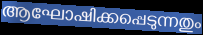
ആഘോഷിക്കപ്പെടുന്നതും